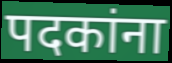
पदकांना